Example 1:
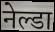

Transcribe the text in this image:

नेल्डा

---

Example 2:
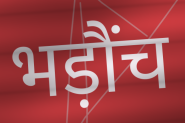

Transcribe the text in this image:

भड़ौंच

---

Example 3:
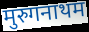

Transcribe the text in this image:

मुरुगनाथम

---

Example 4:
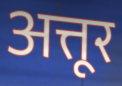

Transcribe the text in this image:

अत्तूर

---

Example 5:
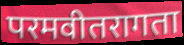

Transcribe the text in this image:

परमवीतरागता